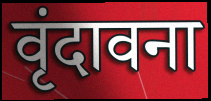
वृंदावना